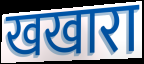
खखारा